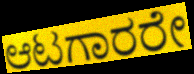
ಆಟಗಾರರೇ